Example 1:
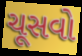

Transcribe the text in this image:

ચૂસવો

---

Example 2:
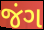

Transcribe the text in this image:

જંગ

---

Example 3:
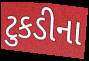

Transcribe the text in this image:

ટુકડીના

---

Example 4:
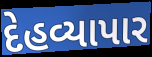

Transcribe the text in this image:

દેહવ્યાપાર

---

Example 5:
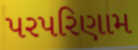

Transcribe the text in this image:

પરપરિણામ